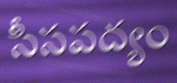
సీసపద్యం